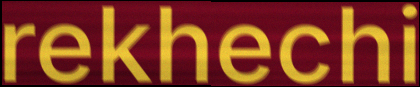
rekhechi